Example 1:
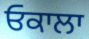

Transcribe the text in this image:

ਓਕਾਲਾ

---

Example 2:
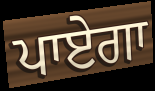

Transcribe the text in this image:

ਪਾਏਗਾ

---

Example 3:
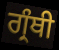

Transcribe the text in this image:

ਗ੍ਰੰਥੀ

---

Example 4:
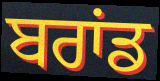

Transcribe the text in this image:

ਬਰਾਂਡ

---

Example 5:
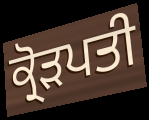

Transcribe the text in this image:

ਕ੍ਰੋੜਪਤੀ